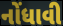
નોંધાવી